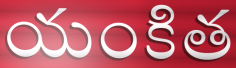
యంకిత